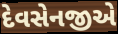
દેવસેનજીએ